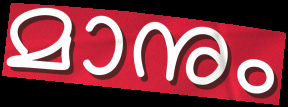
മാനും